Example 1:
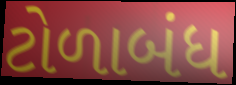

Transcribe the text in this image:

ટોળાબંધ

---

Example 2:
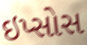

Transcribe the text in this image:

ઇપ્સોસ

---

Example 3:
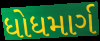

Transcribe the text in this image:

ધોધમાર્ગ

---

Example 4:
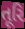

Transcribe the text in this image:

તૂરિ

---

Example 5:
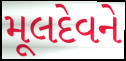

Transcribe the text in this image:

મૂલદેવને